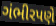
ગંભીરપણે